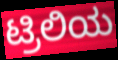
ಟ್ರಿಲಿಯ